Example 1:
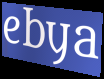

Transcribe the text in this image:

ebya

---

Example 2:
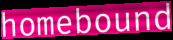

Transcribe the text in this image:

homebound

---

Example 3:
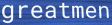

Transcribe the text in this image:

greatmen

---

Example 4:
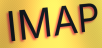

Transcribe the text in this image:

IMAP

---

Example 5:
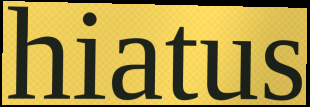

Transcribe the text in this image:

hiatus